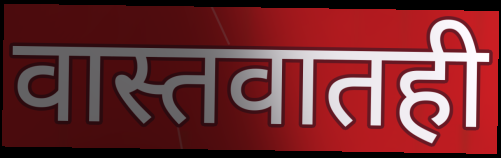
वास्तवातही